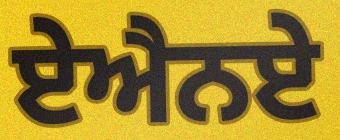
ਏਐਨਏ